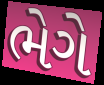
ભેગે